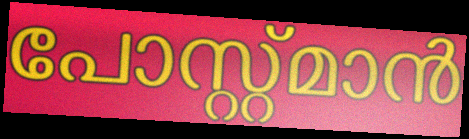
പോസ്റ്റ്മാൻ